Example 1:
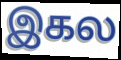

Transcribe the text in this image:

இகல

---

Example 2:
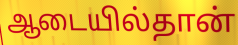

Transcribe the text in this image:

ஆடையில்தான்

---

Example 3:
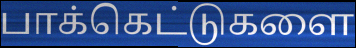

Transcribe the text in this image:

பாக்கெட்டுகளை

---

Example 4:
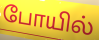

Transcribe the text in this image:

போயில்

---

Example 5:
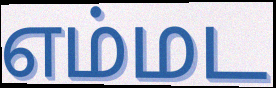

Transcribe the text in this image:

எம்மட